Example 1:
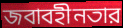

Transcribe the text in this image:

জবাবহীনতার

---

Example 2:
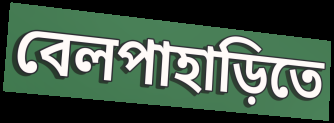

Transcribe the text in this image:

বেলপাহাড়িতে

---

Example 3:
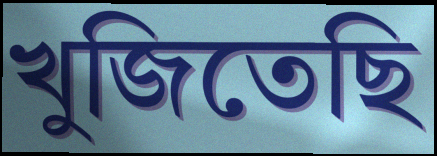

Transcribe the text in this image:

খুজিতেছি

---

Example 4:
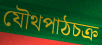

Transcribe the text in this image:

যৌথপাঠচক্র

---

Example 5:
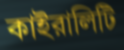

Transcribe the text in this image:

কাইরালিটি